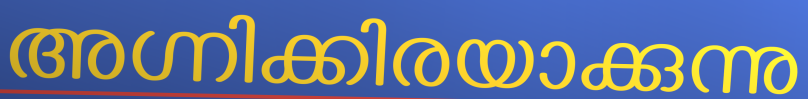
അഗ്നിക്കിരയാക്കുന്നു